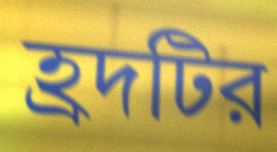
হ্রদটির